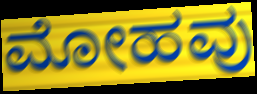
ಮೋಹವು